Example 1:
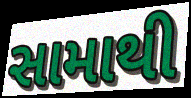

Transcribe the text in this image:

સામાથી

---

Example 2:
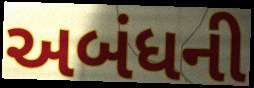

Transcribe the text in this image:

અબંધની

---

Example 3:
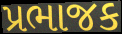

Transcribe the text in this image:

પ્રભાજક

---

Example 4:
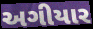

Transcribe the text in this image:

અગીયાર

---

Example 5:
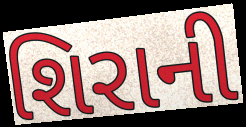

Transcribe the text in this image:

શિરાની